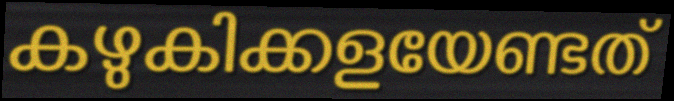
കഴുകിക്കളയേണ്ടത്